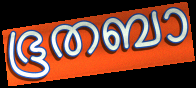
ഭൂതബാ